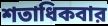
শতাধিকবার